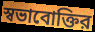
স্বভাবোক্তির